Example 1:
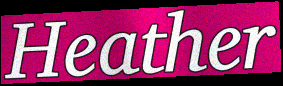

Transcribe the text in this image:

Heather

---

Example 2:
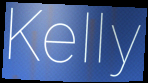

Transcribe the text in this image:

Kelly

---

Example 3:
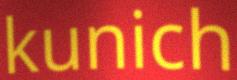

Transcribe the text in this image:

kunich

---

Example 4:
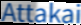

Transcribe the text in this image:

Attakai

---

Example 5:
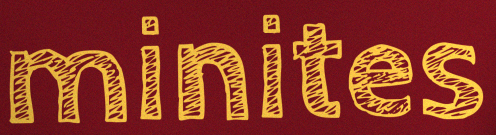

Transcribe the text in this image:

minites